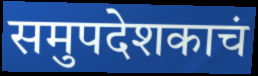
समुपदेशकाचं